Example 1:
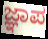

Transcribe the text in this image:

ಜ್ಞಾಪ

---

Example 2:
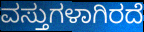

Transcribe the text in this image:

ವಸ್ತುಗಳಾಗಿರದೆ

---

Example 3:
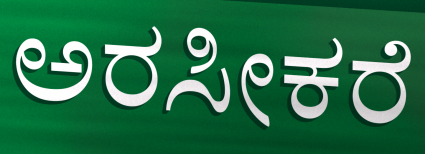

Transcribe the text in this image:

ಅರಸೀಕರೆ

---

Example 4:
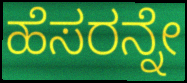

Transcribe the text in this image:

ಹೆಸರನ್ನೇ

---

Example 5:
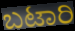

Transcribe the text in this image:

ಬಟಾರಿ